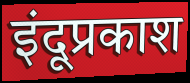
इंदूप्रकाश